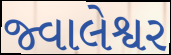
જ્વાલેશ્વર